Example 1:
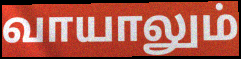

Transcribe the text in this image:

வாயாலும்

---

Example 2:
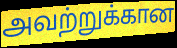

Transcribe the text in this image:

அவற்றுக்கான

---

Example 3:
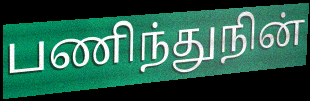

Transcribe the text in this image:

பணிந்துநின்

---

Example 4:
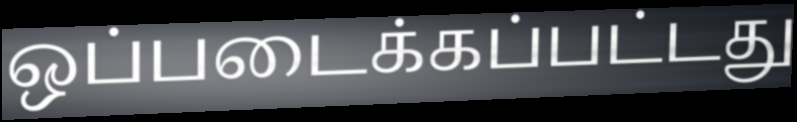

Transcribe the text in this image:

ஒப்படைக்கப்பட்டது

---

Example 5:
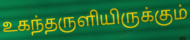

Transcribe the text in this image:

உகந்தருளியிருக்கும்